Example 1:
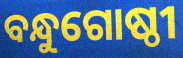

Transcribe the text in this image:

ବନ୍ଧୁଗୋଷ୍ଠୀ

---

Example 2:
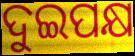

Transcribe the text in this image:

ଦୁଇପକ୍ଷ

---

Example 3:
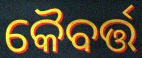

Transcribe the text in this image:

କୈବର୍ତ୍ତ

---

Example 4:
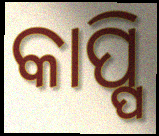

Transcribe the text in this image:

କାପ୍ପି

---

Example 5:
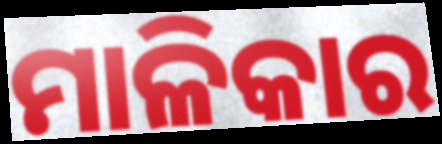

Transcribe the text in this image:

ମାଳିକାର